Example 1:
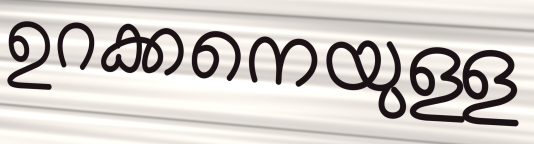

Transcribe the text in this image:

ഉറക്കനെയുള്ള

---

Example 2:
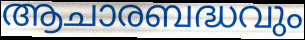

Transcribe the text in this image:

ആചാരബദ്ധവും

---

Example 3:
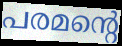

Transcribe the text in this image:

പരമന്റെ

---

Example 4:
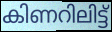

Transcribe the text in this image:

കിണറിലിട്ട്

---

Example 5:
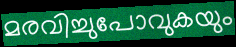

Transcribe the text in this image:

മരവിച്ചുപോവുകയും